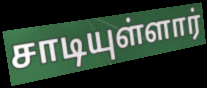
சாடியுள்ளார்